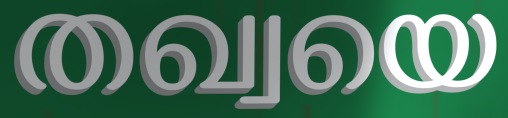
തഖ്വയെ